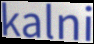
kalni